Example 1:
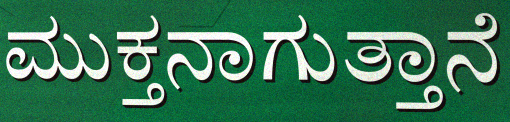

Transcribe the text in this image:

ಮುಕ್ತನಾಗುತ್ತಾನೆ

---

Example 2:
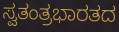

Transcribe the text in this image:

ಸ್ವತಂತ್ರಭಾರತದ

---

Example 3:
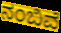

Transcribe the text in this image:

ನಂಬಿವೆ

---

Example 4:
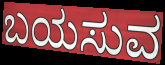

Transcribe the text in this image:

ಬಯಸುವ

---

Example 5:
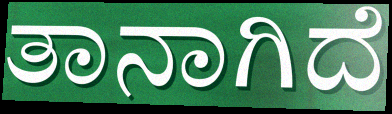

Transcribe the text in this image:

ತಾನಾಗಿದೆ